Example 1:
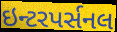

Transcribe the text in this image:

ઇન્ટરપર્સનલ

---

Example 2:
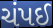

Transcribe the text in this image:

ચંપઈ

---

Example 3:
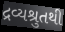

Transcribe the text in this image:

દ્રવ્યશ્રુતથી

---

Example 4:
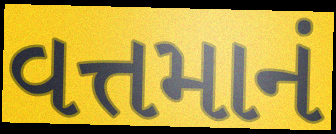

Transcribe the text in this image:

વત્તમાનં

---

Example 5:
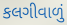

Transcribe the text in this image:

કલગીવાળું